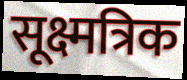
सूक्ष्मत्रिक